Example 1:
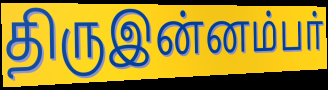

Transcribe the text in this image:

திருஇன்னம்பர்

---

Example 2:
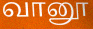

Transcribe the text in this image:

வானூ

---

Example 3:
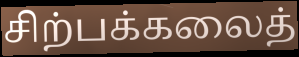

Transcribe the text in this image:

சிற்பக்கலைத்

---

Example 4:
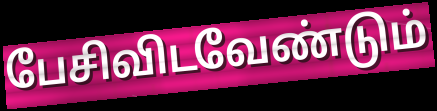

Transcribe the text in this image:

பேசிவிடவேண்டும்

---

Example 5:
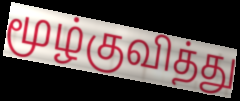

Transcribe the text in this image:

மூழ்குவித்து